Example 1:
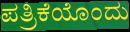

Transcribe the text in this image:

ಪತ್ರಿಕೆಯೊಂದು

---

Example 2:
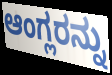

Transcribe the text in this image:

ಆಂಗ್ಲರನ್ನು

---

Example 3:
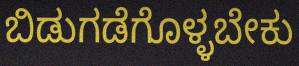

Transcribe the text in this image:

ಬಿಡುಗಡೆಗೊಳ್ಳಬೇಕು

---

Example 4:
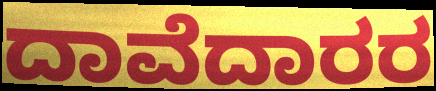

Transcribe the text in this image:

ದಾವೆದಾರರ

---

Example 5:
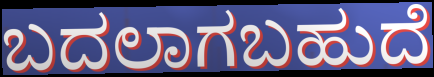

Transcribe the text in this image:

ಬದಲಾಗಬಹುದೆ